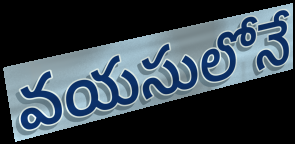
వయసులోనే